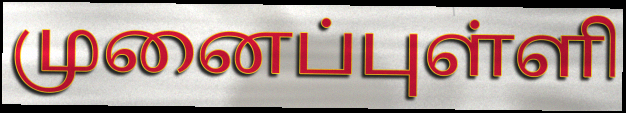
முனைப்புள்ளி